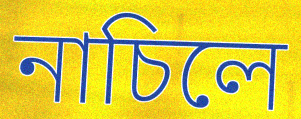
নাচিলে